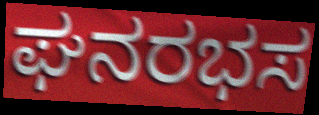
ಘನರಭಸ